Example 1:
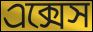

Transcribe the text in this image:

এক্সেস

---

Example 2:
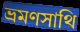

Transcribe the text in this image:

ভ্রমণসাথি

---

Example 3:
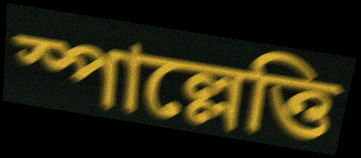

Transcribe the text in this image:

স্পাল্লেত্তি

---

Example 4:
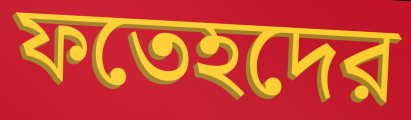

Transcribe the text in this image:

ফতেহদের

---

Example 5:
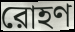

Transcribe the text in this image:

রোহণ